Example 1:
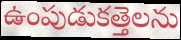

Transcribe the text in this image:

ఉంపుడుకత్తెలను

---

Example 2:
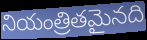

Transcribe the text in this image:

నియంత్రితమైనది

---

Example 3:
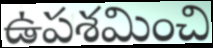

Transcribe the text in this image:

ఉపశమించి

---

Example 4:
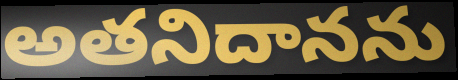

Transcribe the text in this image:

అతనిదానను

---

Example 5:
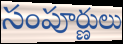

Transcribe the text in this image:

సంపూర్ణులు